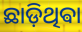
ଛାଡ଼ିଥିଵା